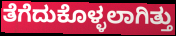
ತೆಗೆದುಕೊಳ್ಳಲಾಗಿತ್ತು